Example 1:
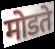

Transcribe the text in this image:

मोडते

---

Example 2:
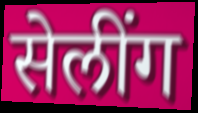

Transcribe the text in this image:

सेलींग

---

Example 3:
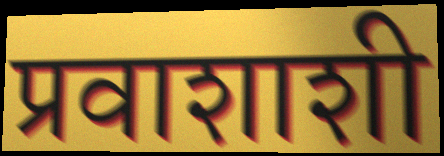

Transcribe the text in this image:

प्रवाशाशी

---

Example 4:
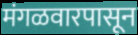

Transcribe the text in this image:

मंगळवारपासून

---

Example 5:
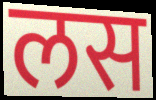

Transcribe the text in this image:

लस